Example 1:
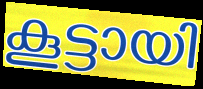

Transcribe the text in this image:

കൂട്ടായി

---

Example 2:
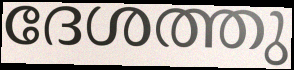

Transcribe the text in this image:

ദേശത്തു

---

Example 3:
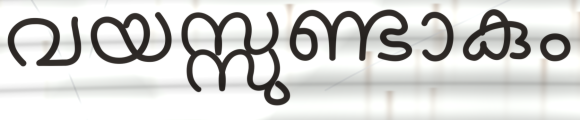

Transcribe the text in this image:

വയസ്സുണ്ടാകും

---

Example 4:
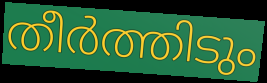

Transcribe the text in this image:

തീർത്തിടും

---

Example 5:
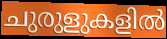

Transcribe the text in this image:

ചുരുളുകളിൽ